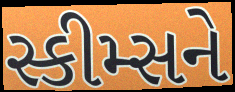
સ્કીમ્સને